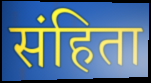
संहिता